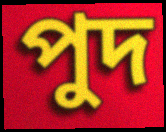
পুদ